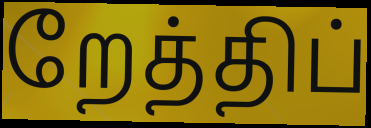
றேத்திப்